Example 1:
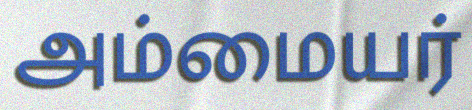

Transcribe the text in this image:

அம்மையர்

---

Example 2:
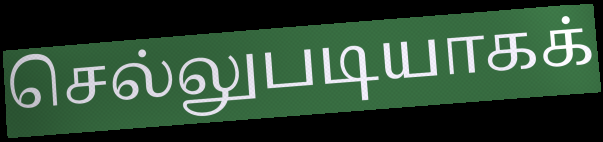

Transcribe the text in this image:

செல்லுபடியாகக்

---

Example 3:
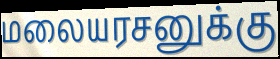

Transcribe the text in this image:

மலையரசனுக்கு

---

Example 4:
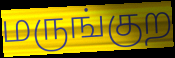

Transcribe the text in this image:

மருங்குற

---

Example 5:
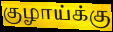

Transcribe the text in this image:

குழாய்க்கு